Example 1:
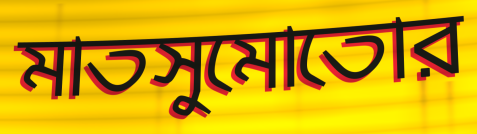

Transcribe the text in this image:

মাতসুমোতোর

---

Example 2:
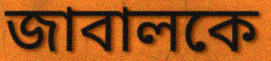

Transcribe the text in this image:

জাবালকে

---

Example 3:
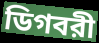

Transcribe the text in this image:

ডিগবরী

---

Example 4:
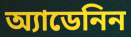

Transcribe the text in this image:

অ্যাডেনিন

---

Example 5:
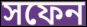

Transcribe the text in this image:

সফেন